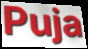
Puja